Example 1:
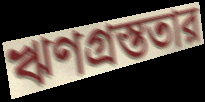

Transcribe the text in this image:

ঋণগ্রস্ততার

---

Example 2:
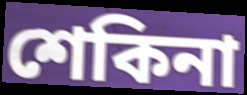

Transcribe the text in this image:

শেকিনা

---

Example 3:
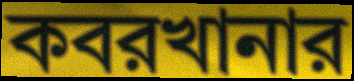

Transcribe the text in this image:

কবরখানার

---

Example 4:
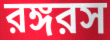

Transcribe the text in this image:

রঙ্গরস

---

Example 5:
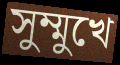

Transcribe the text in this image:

সুম্মুখে